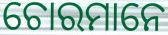
ଚୋରମାନେ